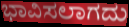
ಭಾವಿಸಲಾಗದು